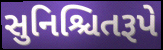
સુનિશ્ચિતરૂપે